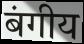
बंगीय